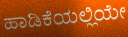
ಹಾಡಿಕೆಯಲ್ಲಿಯೇ